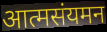
आत्मसंयमन